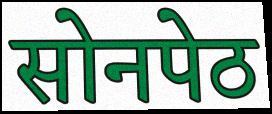
सोनपेठ